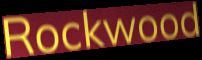
Rockwood